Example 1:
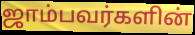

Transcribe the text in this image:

ஜாம்பவர்களின்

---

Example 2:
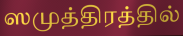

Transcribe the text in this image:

ஸமுத்திரத்தில்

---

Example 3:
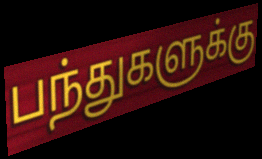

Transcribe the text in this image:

பந்துகளுக்கு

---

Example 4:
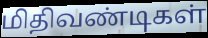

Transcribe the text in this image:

மிதிவண்டிகள்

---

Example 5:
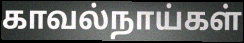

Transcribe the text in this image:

காவல்நாய்கள்